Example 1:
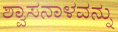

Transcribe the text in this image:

ಶ್ವಾಸನಾಳವನ್ನು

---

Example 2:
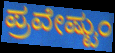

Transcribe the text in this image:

ಪ್ರವೇಷ್ಟುಂ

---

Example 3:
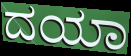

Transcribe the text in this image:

ದಯಾ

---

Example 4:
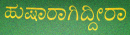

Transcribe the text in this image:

ಹುಷಾರಾಗಿದ್ದೀರಾ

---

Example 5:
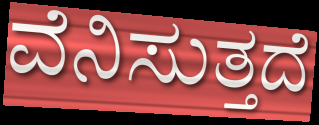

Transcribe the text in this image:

ವೆನಿಸುತ್ತದೆ